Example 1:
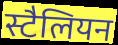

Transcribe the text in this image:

स्टैलियन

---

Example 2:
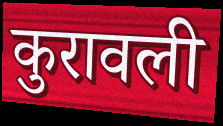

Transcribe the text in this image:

कुरावली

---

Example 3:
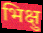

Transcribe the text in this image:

भिक्षु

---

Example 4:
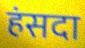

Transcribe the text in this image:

हंसदा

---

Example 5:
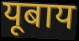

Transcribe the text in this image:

यूबाय